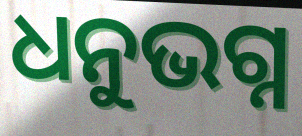
ଧନୁଭଗ୍ନ